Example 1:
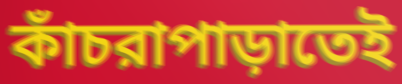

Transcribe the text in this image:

কাঁচরাপাড়াতেই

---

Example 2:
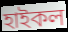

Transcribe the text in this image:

হাইকল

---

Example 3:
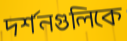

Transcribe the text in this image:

দর্শনগুলিকে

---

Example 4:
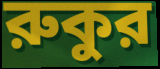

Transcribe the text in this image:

রুকুর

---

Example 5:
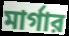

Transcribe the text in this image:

মার্গার